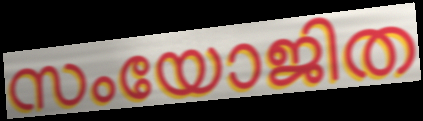
സംയോജിത